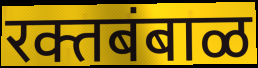
रक्‍तबंबाळ